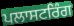
ਪਲਾਸਟਰਿੰਗ